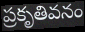
ప్రకృతివనం